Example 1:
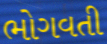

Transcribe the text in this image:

ભોગવતી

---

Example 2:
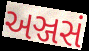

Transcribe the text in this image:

અઞ્જસં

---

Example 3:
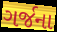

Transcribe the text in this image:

ગર્જના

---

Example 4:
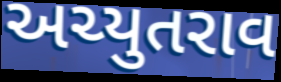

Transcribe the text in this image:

અચ્યુતરાવ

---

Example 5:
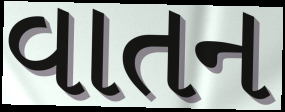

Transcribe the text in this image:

વાતન